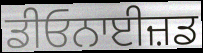
ਡੀਓਨਾਈਜ਼ਡ